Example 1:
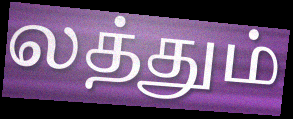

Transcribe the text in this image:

லத்தும்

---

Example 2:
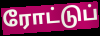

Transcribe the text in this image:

ரோட்டுப்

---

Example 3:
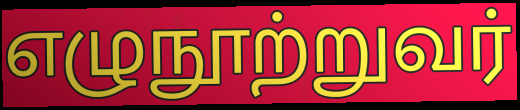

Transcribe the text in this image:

எழுநூற்றுவர்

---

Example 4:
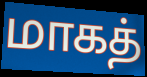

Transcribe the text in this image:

மாகத்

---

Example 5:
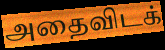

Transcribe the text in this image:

அதைவிடக்